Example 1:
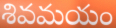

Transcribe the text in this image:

శివమయం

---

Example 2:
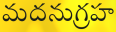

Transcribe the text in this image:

మదనుగ్రహ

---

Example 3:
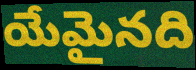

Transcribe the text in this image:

యేమైనది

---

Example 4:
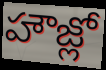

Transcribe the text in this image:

హౌజ్లో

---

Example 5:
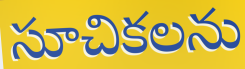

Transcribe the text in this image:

సూచికలను